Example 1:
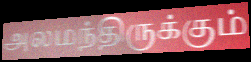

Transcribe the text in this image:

அலமந்திருக்கும்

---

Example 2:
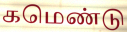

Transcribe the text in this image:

கமெண்டு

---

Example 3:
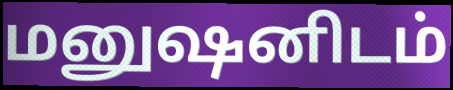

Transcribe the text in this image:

மனுஷனிடம்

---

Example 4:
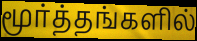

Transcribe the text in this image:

மூர்த்தங்களில்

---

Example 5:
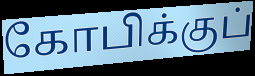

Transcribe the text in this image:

கோபிக்குப்